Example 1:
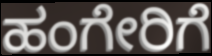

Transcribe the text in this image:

ಹಂಗೇರಿಗೆ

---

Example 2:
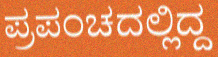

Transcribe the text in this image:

ಪ್ರಪಂಚದಲ್ಲಿದ್ದ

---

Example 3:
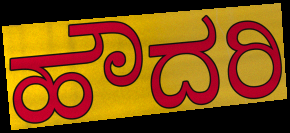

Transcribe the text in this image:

ಹೌದರಿ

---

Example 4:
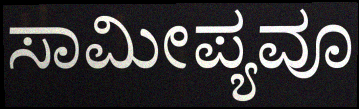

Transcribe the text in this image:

ಸಾಮೀಪ್ಯವೂ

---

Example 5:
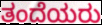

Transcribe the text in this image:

ತಂದೆಯರು